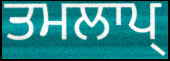
ਤਮਲਾਪ੍